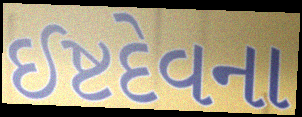
ઈષ્ટદેવના